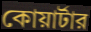
কোয়ার্টার